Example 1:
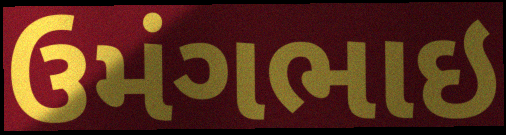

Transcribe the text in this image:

ઉમંગભાઇ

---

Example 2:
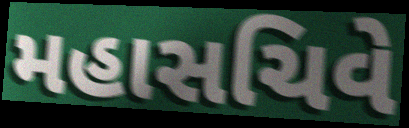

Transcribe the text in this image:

મહાસચિવે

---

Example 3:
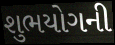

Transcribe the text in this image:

શુભયોગની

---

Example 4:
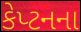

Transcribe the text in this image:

કેપ્ટનના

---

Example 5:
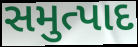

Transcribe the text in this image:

સમુત્પાદ